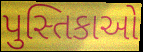
પુસ્તિકાઓ